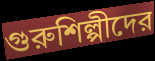
গুরুশিল্পীদের